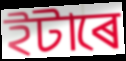
ইটাৰে